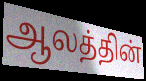
ஆலத்தின்